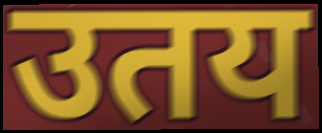
उतय